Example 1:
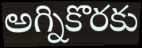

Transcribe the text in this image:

అగ్నికొరకు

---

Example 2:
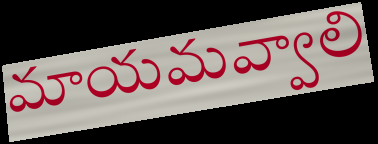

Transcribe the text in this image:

మాయమవ్వాలి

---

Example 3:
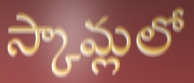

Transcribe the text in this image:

స్కామ్లలో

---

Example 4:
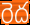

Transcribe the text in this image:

రెద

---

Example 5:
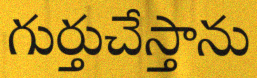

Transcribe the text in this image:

గుర్తుచేస్తాను